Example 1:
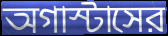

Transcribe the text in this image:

অগাস্টাসের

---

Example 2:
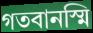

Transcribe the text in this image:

গতবানস্মি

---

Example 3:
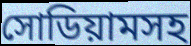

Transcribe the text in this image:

সোডিয়ামসহ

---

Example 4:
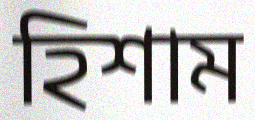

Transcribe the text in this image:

হিশাম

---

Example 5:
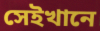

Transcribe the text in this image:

সেইখানে